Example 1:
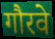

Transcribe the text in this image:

गौरवे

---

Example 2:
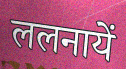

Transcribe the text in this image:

ललनायें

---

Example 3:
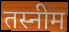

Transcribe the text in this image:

तस्नीम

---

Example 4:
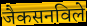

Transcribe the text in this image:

जैकसनविले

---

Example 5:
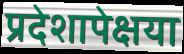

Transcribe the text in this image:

प्रदेशापेक्षया